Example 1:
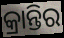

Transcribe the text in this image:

କ୍ରାନ୍ତିର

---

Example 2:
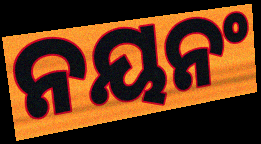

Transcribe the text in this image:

ନୟନଂ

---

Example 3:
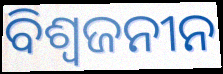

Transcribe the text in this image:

ବିଶ୍ବଜନୀନ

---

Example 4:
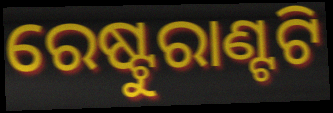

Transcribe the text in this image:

ରେଷ୍ଟୁରାଣ୍ଟଟି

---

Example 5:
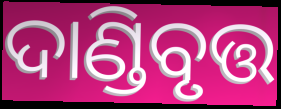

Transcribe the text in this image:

ଦାଣ୍ଡିବୃତ୍ତ